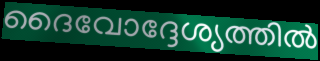
ദൈവോദ്ദേശ്യത്തിൽ